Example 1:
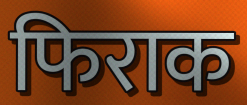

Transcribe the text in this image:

फिराक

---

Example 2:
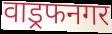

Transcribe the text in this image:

वाड्रफनगर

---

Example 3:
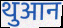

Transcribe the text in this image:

थुआन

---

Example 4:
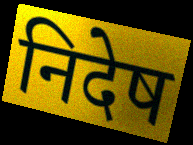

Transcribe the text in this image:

निदेष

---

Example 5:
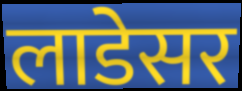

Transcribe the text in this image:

लाडेसर